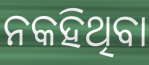
ନକହିଥିବା